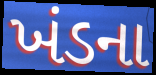
ખંડના